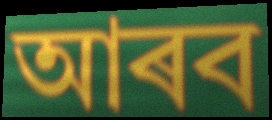
আৰব